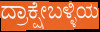
ದ್ರಾಕ್ಷೇಬಳ್ಳಿಯ